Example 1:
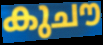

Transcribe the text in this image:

കുചൗ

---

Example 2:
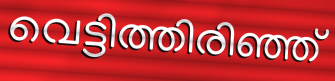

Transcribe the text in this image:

വെട്ടിത്തിരിഞ്ഞ്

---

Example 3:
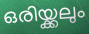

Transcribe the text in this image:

ഒരിയ്ക്കലും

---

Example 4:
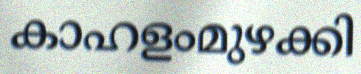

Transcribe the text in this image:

കാഹളംമുഴക്കി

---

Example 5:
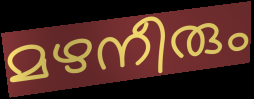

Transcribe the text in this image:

മഴനീരും